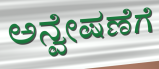
ಅನ್ವೇಷಣೆಗೆ